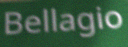
Bellagio